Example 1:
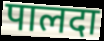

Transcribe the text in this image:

पालदा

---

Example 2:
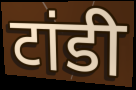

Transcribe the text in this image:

टांडी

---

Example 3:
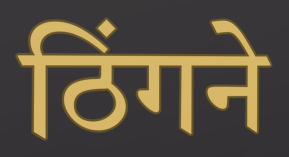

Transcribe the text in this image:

ठिंगने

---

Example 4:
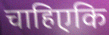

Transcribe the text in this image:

चाहिएकि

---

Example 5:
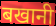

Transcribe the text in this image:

बखानी